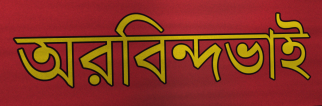
অরবিন্দভাই